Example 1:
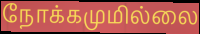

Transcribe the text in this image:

நோக்கமுமில்லை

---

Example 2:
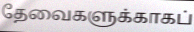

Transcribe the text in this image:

தேவைகளுக்காகப்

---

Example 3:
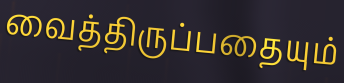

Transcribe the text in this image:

வைத்திருப்பதையும்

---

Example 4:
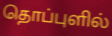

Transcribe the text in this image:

தொப்புளில்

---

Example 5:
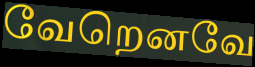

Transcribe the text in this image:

வேறெனவே